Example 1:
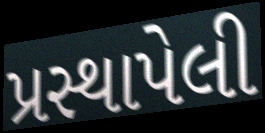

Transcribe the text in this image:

પ્રસ્થાપેલી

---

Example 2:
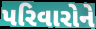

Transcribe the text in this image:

પરિવારોને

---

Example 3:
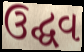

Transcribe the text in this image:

ઉદ્ઘવ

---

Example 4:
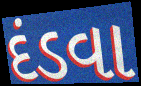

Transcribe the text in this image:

દંડવા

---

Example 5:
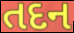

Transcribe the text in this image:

તદન